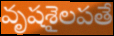
వృషశైలపతే